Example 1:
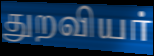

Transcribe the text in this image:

துறவியர்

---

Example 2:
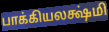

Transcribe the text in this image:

பாக்கியலக்ஷ்மி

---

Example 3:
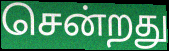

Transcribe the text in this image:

சென்றது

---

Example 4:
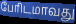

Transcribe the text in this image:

பேரிடமாவது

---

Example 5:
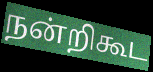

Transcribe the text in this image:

நன்றிகூட